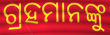
ଗ୍ରହମାନଙ୍କୁ